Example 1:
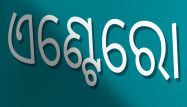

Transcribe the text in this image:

ଏଣ୍ଟେରୋ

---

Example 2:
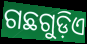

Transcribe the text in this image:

ଗଛଗୁଡ଼ିଏ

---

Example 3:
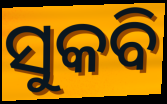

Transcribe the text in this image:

ସୁକବି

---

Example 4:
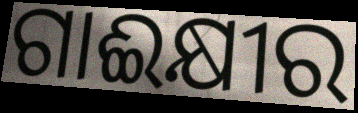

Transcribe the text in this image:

ଗାଈକ୍ଷୀର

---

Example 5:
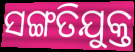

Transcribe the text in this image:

ସଙ୍ଗତିଯୁକ୍ତ